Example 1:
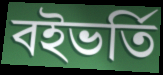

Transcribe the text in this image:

বইভর্তি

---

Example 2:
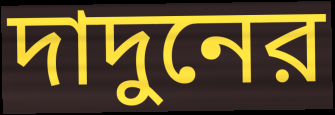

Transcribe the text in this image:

দাদুনের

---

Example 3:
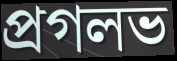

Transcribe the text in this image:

প্রগলভ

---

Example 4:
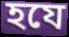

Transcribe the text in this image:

হযে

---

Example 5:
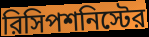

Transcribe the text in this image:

রিসিপশনিস্টের